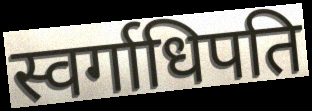
स्वर्गाधिपति